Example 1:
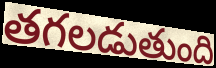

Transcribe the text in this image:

తగలడుతుంది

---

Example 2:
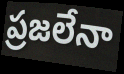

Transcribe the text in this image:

ప్రజలేనా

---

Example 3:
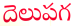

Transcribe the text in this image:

దెలుపగ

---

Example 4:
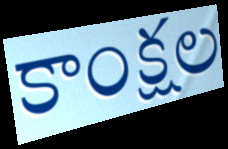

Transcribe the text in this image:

కాంక్షల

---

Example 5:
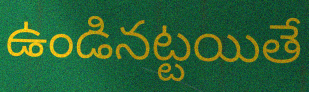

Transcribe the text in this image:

ఉండినట్టయితే